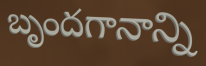
బృందగానాన్ని